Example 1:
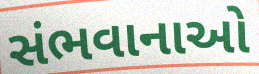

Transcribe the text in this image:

સંભવાનાઓ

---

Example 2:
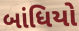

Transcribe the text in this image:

બાંધિયો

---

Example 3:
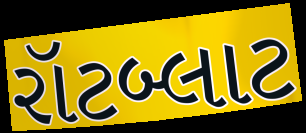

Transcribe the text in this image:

રૉટબ્લાટ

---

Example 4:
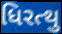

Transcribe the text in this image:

ધિરત્થુ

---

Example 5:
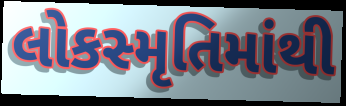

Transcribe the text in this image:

લોકસ્મૃતિમાંથી